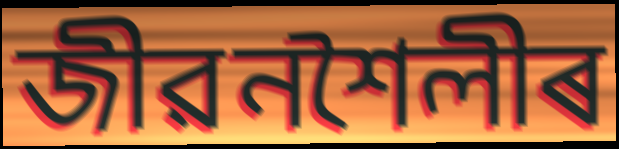
জীৱনশৈলীৰ